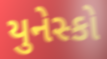
યુનેસ્કો